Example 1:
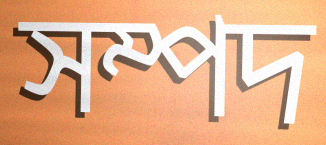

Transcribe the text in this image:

সম্পদ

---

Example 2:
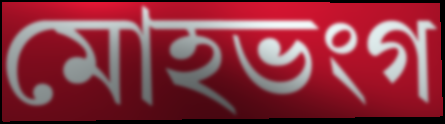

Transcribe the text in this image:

মোহভংগ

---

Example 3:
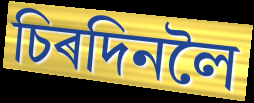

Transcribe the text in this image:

চিৰদিনলৈ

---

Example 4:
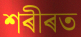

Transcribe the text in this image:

শৰীৰত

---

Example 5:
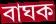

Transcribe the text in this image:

বাঘক